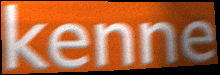
kenne